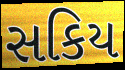
સકિય